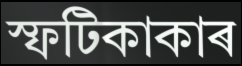
স্ফটিকাকাৰ